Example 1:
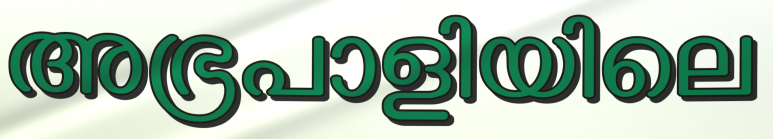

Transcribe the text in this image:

അഭ്രപാളിയിലെ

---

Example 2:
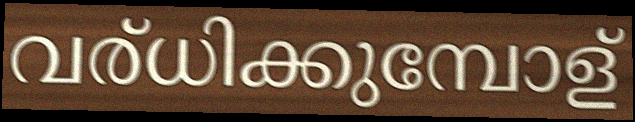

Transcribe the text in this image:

വര്ധിക്കുമ്പോള്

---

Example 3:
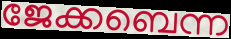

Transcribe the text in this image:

ജേക്കബെന്ന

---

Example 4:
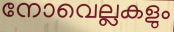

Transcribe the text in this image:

നോവെല്ലകളും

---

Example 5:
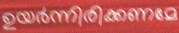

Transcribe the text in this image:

ഉയർന്നിരിക്കണമേ